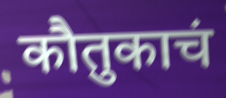
कौतुकाचं